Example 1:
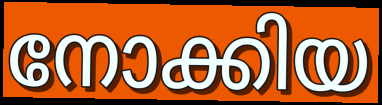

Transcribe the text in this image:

നോക്കിയ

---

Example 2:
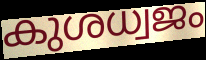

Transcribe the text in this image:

കുശധ്വജം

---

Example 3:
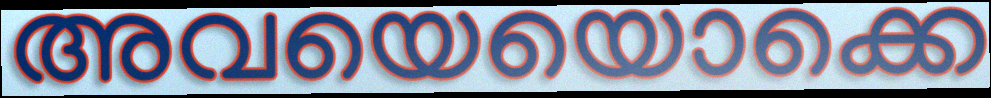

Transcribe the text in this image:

അവയെയൊക്കെ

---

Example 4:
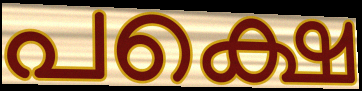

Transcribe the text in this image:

പക്ഷെ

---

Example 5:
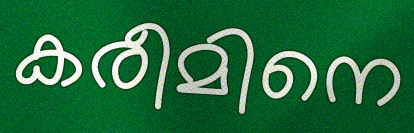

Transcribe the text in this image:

കരീമിനെ